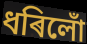
ধৰিলোঁ